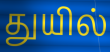
துயில்